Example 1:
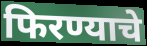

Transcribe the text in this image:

फिरण्याचे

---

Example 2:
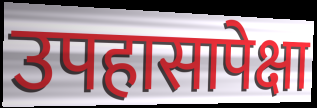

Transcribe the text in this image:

उपहासापेक्षा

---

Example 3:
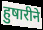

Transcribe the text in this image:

हुषारीने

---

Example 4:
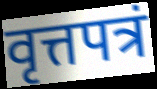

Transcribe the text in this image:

वृत्तपत्रं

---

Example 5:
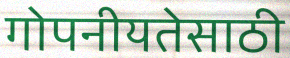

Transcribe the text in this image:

गोपनीयतेसाठी